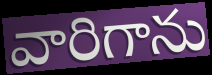
వారిగాను